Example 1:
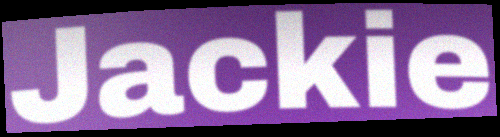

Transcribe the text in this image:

Jackie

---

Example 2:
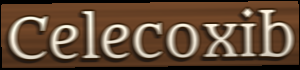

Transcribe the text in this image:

Celecoxib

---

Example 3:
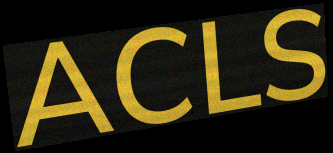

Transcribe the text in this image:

ACLS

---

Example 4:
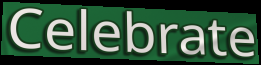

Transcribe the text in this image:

Celebrate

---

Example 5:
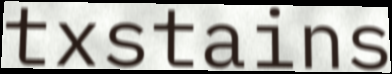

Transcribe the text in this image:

txstains